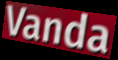
Vanda